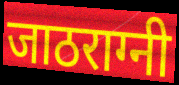
जाठराग्नी